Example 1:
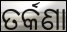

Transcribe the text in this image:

ତର୍କଣା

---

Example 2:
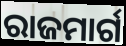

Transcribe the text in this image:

ରାଜମାର୍ଗ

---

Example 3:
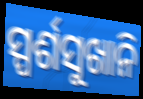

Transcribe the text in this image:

ସ୍ପର୍ଶସୁଖାନି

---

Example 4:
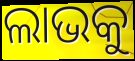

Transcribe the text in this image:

ଲାଭକୁ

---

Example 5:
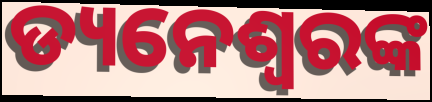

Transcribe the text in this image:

ଡ୍ୟନେଶ୍ୱରଙ୍କ